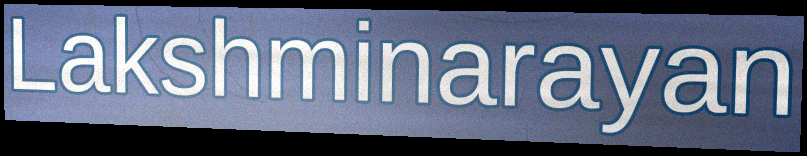
Lakshminarayan